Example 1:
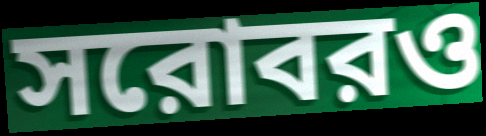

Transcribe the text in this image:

সরোবরও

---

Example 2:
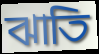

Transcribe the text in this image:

ঝাতি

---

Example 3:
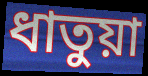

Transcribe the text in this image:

ধাতুয়া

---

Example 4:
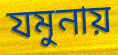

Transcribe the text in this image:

যমুনায়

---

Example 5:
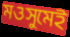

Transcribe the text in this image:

মওসুমেই